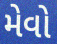
મેવો